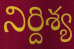
నిర్దిశ్య